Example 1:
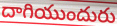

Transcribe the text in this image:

దాగియుందురు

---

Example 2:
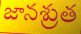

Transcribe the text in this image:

జానశ్రుత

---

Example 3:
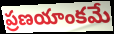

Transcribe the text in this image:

ప్రణయాంకమే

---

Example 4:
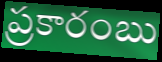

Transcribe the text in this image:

ప్రకారంబు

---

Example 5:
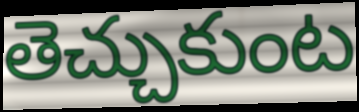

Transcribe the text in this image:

తెచ్చుకుంట